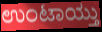
ಉಂಟಾಯ್ತು